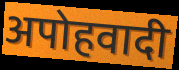
अपोहवादी